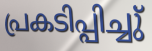
പ്രകടിപ്പിച്ചു്